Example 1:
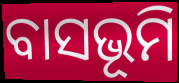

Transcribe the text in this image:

ବାସଭୂମି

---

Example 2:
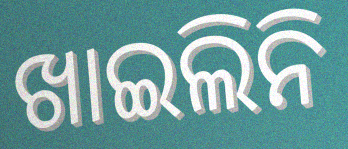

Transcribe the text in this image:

ଖାଇଲିନି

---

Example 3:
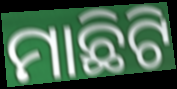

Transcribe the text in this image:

ମାଛିଟି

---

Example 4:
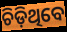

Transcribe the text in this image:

ଚିଡ଼ିଥିବେ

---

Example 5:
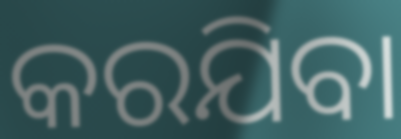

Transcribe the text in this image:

କରଯିବା